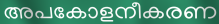
അപകോളനീകരണ